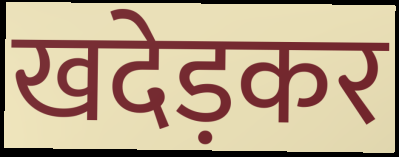
खदेड़कर